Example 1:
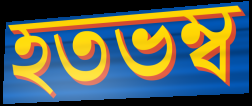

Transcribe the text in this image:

হতভম্ব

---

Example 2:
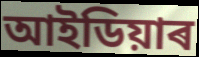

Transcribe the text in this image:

আইডিয়াৰ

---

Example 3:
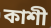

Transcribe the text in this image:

কাশী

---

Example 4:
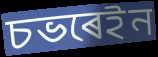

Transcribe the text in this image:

চভৰেইন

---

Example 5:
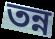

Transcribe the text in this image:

তন্ন